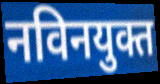
नविनयुक्त